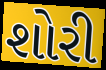
શોરી